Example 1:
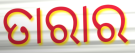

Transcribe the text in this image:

ତାରାର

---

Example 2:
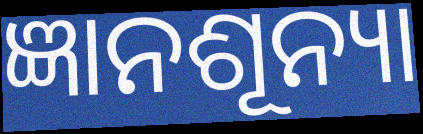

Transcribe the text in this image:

ଜ୍ଞାନଶୂନ୍ୟା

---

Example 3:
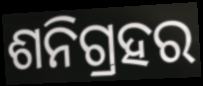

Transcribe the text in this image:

ଶନିଗ୍ରହର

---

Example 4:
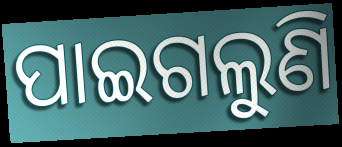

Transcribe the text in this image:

ପାଇଗଲୁଣି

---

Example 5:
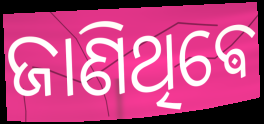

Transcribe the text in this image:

ଜାଣିଥିଵେ